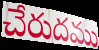
చేరుదము